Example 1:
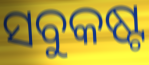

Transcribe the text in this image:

ସବୁକଷ୍ଟ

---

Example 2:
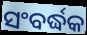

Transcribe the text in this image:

ସଂବର୍ଦ୍ଧକ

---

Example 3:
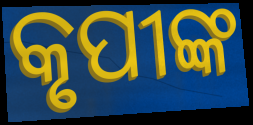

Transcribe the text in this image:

କୃପୀଙ୍କ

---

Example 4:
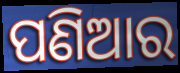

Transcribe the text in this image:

ପଣିଆର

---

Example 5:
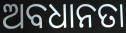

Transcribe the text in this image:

ଅବଧାନତା